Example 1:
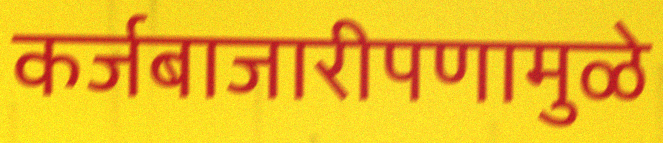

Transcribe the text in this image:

कर्जबाजारीपणामुळे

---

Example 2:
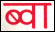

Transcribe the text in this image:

ब्वा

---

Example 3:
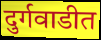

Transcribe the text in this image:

दुर्गवाडीत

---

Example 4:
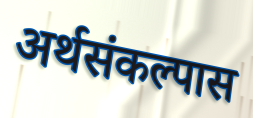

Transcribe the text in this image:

अर्थसंकल्पास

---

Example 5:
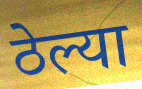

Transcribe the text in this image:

ठेल्या